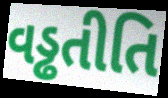
વડ્ઢતીતિ